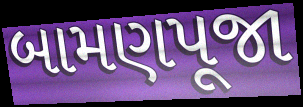
બામણપૂજા